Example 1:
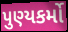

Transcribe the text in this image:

પુણ્યકર્મો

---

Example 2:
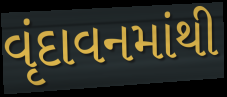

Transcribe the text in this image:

વૃંદાવનમાંથી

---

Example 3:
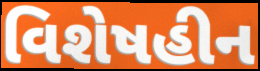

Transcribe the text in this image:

વિશેષહીન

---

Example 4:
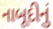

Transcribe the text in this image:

નાબૂદીનું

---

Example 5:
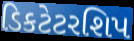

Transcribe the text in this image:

ડિકટેટરશિપ